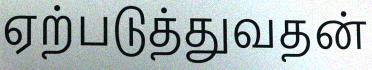
ஏற்படுத்துவதன்